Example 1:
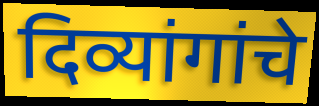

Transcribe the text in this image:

दिव्यांगांचे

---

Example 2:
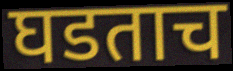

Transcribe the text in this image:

घडताच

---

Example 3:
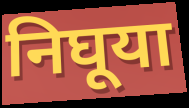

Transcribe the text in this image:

निघूया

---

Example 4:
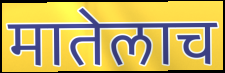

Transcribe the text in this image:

मातेलाच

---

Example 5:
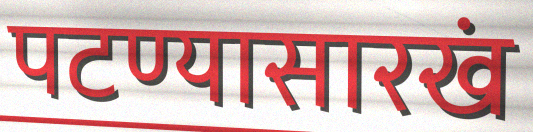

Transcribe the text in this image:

पटण्यासारखं